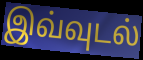
இவ்வுடல்